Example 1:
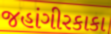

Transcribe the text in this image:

જહાંગીરકાકા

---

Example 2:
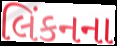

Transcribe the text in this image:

લિંકનના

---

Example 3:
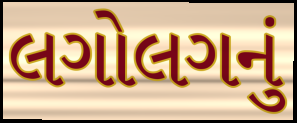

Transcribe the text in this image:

લગોલગનું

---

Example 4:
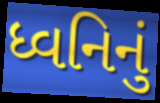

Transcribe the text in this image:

ધ્વનિનું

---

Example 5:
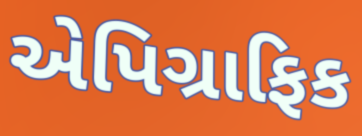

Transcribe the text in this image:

એપિગ્રાફિક